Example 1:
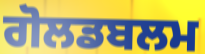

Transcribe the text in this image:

ਗੋਲਡਬਲਮ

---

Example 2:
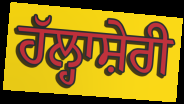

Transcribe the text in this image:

ਹੱਲ੍ਹਾਸ਼ੇਰੀ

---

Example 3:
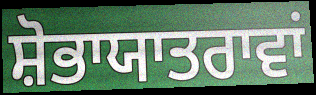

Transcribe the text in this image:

ਸ਼ੋਭਾਯਾਤਰਾਵਾਂ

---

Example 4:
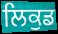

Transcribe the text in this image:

ਲਿਕੁਡ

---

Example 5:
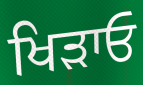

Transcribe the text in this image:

ਖਿੜਾਓ